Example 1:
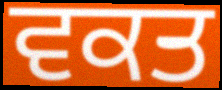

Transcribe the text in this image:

ਵਕਤ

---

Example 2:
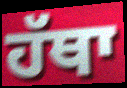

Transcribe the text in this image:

ਹੱਥਾ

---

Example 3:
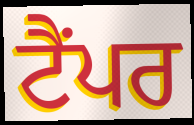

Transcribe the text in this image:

ਟੈਂਪਰ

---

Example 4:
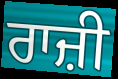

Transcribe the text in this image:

ਰਾਜ਼ੀ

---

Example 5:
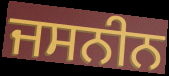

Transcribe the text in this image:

ਜਸਨੀਨ